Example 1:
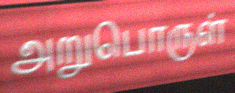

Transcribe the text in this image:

அறுபொருள்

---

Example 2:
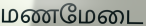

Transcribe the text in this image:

மணமேடை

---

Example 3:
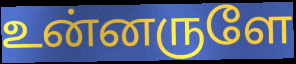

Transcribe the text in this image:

உன்னருளே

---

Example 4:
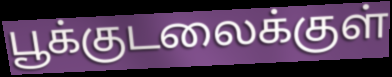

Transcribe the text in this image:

பூக்குடலைக்குள்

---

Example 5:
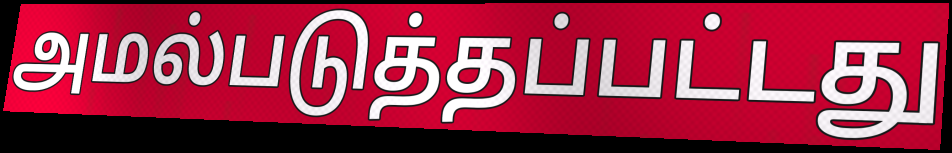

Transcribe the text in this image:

அமல்படுத்தப்பட்டது